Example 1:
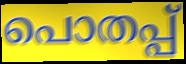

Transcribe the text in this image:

പൊതപ്പ്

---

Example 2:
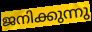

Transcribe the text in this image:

ജനിക്കുന്നു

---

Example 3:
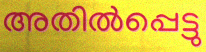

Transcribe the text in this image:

അതിൽപ്പെട്ടു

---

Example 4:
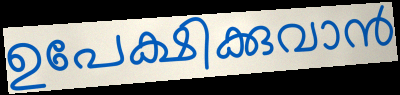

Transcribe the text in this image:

ഉപേക്ഷിക്കുവാൻ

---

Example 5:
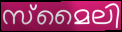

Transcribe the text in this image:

സ്മൈലി